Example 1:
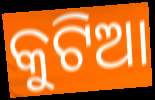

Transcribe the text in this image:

କୁଟିଆ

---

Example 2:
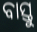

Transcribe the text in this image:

ବାସ୍ତୁ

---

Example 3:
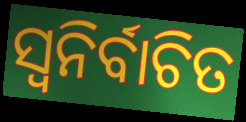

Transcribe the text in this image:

ସ୍ବନିର୍ବାଚିତ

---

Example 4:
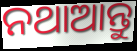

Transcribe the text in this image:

ନଥାଆନ୍ତୁ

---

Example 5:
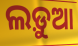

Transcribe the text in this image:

ଲଡ଼ୁଆ